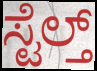
ಸ್ಟೆಲ್ತ್